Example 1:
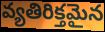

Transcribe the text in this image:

వ్యతిరిక్తమైన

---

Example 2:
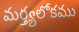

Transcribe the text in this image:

మర్త్యలోకము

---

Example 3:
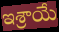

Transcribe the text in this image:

ఇశ్రాయే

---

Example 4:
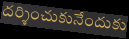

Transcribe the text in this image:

దర్శించుకునేందుకు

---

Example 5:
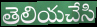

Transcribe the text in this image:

తెలియచేసి